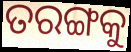
ତରଙ୍ଗକୁ